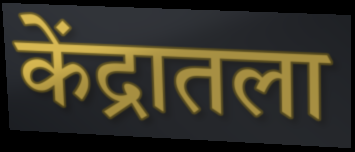
केंद्रातला